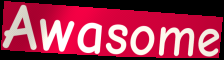
Awasome